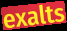
exalts